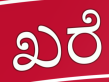
ಖರೆ